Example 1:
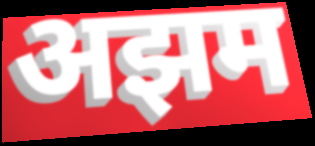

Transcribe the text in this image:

अझम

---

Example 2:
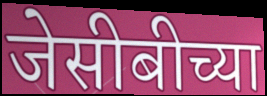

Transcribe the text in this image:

जेसीबीच्या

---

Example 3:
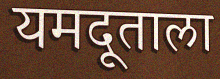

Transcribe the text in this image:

यमदूताला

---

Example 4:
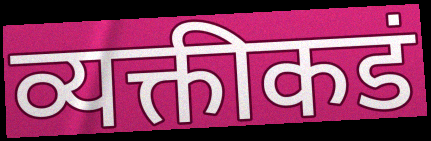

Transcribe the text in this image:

व्यक्तीकडं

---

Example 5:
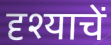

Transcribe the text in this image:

दृश्याचें